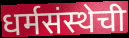
धर्मसंस्थेची